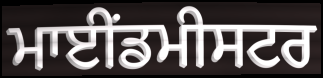
ਮਾਈਂਡਮੀਸਟਰ